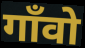
गाँवो